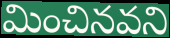
మించినవని